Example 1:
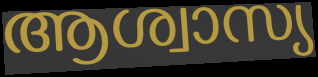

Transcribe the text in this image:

ആശ്വാസ്യ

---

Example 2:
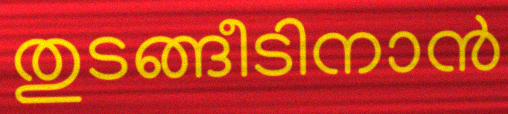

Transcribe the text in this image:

തുടങ്ങീടിനാൻ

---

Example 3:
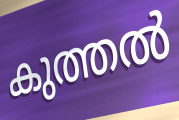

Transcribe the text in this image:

കുത്തൽ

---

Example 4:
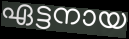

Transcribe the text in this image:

ഏട്ടനായ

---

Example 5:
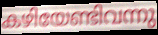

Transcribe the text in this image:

കഴിയേണ്ടിവന്നു